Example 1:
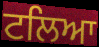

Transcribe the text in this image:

ਟਲਿਆ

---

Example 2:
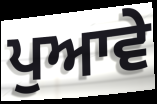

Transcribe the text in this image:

ਪੁਆਵੇ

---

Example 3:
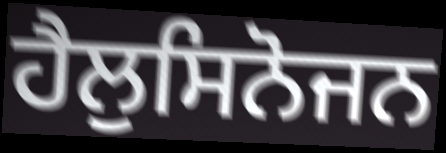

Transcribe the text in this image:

ਹੈਲੁਸਿਨੋਜਨ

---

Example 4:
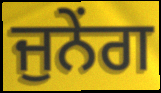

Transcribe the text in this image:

ਜੁਨੇਂਗ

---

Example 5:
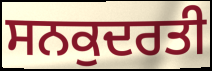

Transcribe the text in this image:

ਸਨਕੁਦਰਤੀ